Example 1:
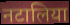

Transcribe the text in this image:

नटालिया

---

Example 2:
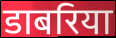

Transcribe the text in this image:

डाबरिया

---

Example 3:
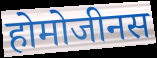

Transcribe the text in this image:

होमोजीनस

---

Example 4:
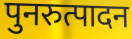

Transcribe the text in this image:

पुनरुत्पादन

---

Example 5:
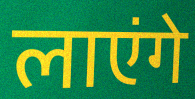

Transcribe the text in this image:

लाएंगे